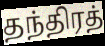
தந்திரத்